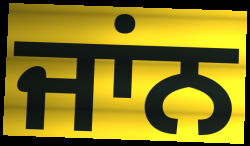
ਜਾਂਨ